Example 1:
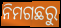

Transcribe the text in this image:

ନିମଗଛରୁ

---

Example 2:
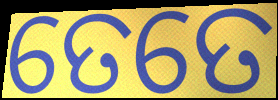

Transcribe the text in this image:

ତେତେ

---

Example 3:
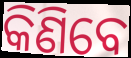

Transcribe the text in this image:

କିଣିବେ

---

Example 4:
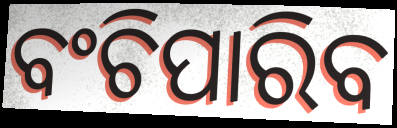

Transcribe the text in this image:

ବଂଚିପାରିବ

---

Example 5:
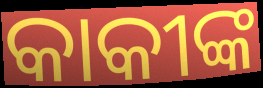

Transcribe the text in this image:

କାକୀଙ୍କ